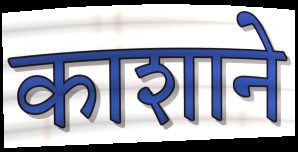
काशाने